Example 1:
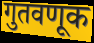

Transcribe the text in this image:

गुतवणूक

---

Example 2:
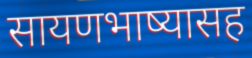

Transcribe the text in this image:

सायणभाष्यासह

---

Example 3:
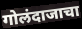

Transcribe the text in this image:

गोलंदाजाचा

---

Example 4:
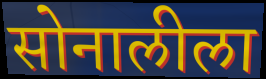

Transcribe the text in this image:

सोनालीला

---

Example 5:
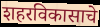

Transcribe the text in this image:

शहरविकासाचे